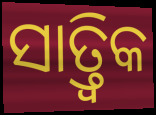
ସାତ୍ତ୍ବିକ